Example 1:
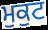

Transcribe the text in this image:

ਮੁਕੁਟ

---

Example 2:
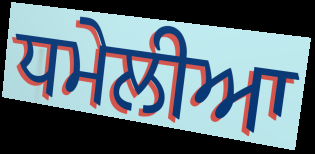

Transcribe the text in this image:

ਧਮੇਲੀਆ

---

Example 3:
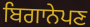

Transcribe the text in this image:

ਬਿਗਾਨੇਪਣ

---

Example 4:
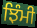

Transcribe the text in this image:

ਝਿੰਮੀ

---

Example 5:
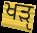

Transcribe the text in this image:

ਖੜੵ